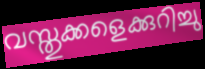
വസ്തുക്കളെക്കുറിച്ചു